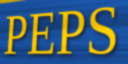
PEPS